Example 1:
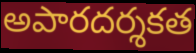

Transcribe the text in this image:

అపారదర్శకత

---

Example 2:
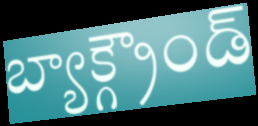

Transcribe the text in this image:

బ్యాక్గ్రౌండ్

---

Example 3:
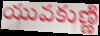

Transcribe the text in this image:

యువకుణ్ణి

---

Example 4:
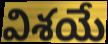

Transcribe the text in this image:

విశయే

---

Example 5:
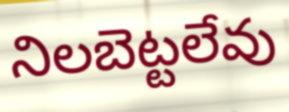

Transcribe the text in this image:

నిలబెట్టలేవు